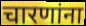
चारणांना